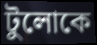
টুলোকে